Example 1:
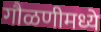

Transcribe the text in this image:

गौळणीमध्ये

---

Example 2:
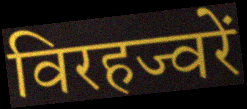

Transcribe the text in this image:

विरहज्वरें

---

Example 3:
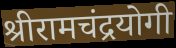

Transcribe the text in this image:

श्रीरामचंद्रयोगी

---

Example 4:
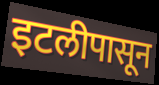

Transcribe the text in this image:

इटलीपासून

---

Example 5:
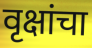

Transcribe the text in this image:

वृक्षांचा